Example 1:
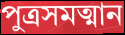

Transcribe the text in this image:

পুত্রসমত্মান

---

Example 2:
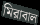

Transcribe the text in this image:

মিরাবাল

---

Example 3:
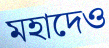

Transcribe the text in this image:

মহাদেও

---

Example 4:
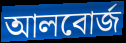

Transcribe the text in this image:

আলবোর্জ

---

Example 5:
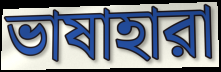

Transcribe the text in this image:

ভাষাহারা